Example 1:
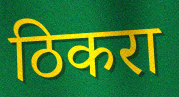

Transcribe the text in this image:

ठिकरा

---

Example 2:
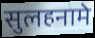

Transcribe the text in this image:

सुलहनामे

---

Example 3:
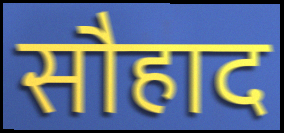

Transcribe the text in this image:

सौहाद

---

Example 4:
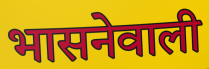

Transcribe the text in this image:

भासनेवाली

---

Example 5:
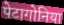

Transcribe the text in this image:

पेटागोनिया